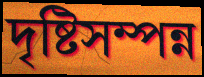
দৃষ্টিসম্পন্ন